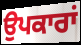
ਉਪਕਾਰਾਂ